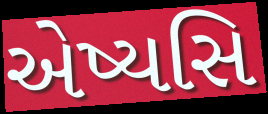
એષ્યસિ